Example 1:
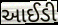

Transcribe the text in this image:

આઈડી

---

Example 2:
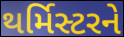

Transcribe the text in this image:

થર્મિસ્ટરને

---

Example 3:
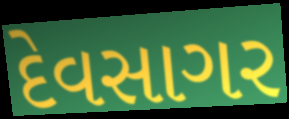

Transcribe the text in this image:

દેવસાગર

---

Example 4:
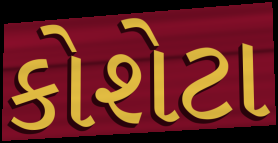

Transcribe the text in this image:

કોશેટા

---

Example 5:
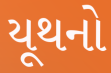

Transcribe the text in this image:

યૂથનો